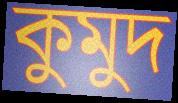
কুমুদ